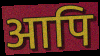
आपि